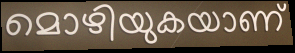
മൊഴിയുകയാണ്